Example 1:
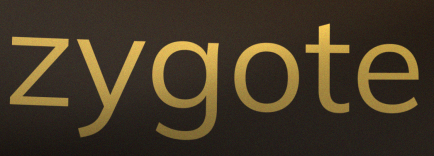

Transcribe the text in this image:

zygote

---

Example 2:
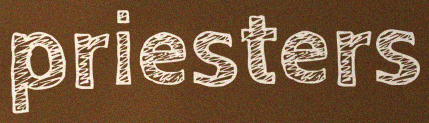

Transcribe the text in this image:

priesters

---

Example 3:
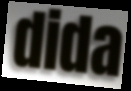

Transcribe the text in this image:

dida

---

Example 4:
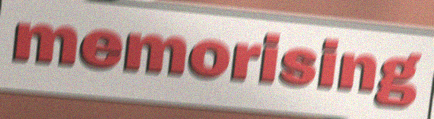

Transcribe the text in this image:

memorising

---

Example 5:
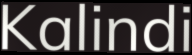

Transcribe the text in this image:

Kalindi